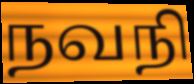
நவநி